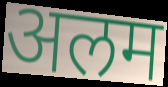
अलम